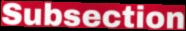
Subsection